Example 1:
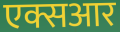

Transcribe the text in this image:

एक्सआर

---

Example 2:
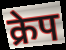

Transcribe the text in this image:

क्रेप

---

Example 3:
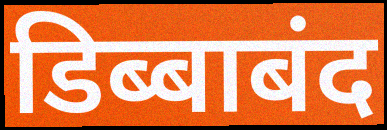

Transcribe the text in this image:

डिब्बाबंद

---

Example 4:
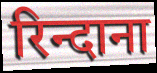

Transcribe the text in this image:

रिन्दाना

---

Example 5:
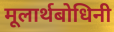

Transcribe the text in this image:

मूलार्थबोधिनी